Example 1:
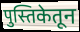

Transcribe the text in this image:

पुस्तिकेतून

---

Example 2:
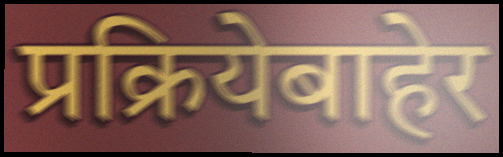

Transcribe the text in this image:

प्रक्रियेबाहेर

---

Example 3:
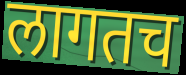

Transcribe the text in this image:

लागतच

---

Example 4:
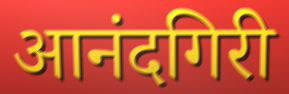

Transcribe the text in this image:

आनंदगिरी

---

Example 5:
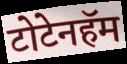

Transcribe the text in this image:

टोटेनहॅम